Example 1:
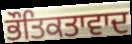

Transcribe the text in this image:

ਭੌਤਿਕਤਾਵਾਦ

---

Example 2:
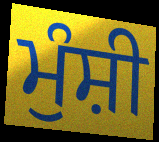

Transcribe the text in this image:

ਮੁੰਸ਼ੀ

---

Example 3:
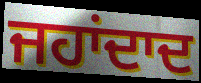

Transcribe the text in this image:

ਜਹਾਂਦਾਦ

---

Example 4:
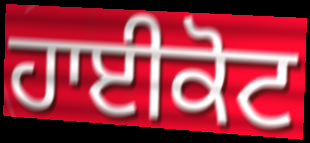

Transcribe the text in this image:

ਹਾਈਕੋਟ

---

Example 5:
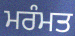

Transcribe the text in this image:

ਮਰੰਮਤ